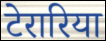
टेरारिया